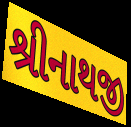
શ્રીનાથજી